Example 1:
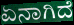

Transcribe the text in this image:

ಏನಾಗಿದೆ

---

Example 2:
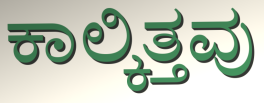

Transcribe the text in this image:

ಕಾಲ್ಕಿತ್ತವು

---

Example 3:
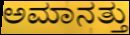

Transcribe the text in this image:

ಅಮಾನತ್ತು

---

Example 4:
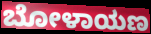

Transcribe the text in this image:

ಬೋಳಾಯಣ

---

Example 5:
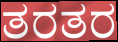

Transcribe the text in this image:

ತರತರ